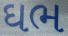
ઘભ